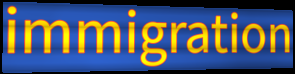
immigration